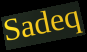
Sadeq